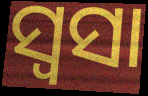
ସ୍ୱସା